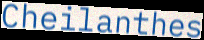
Cheilanthes